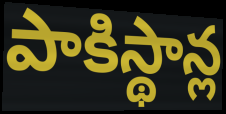
పాకిస్థాన్ల